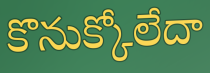
కొనుక్కోలేదా